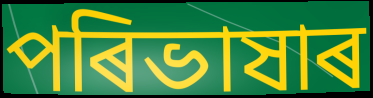
পৰিভাষাৰ